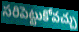
సరిపెట్టుకోవచ్చు